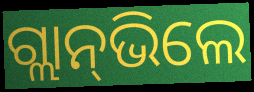
ଗ୍ଲାନ୍‌ଭିଲେ